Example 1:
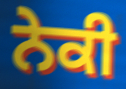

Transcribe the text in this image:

ਨੇਕੀ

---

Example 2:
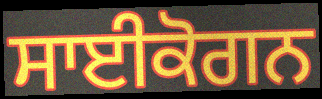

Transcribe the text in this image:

ਸਾਈਕੋਗਨ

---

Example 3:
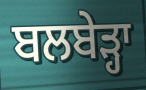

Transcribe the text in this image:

ਬਲਬੇੜ੍ਹਾ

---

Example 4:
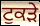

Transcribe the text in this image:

ਟੁਕੜੇ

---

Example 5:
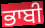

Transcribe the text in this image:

ਭਾਬੀ